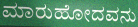
ಮಾರುಹೋದವನು